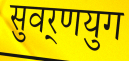
सुवर्णयुग